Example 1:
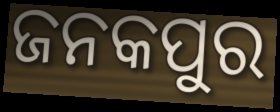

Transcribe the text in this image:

ଜନକପୁର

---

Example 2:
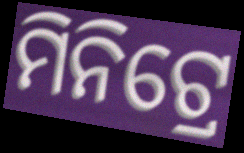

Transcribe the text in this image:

ମିନିଟ୍ରେ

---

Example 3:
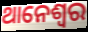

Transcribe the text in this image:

ଥାନେଶ୍ୱର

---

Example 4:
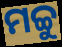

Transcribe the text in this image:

ମଚ୍ଚୁ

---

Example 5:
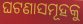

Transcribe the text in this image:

ଘଟଣାସମୂହକୁ